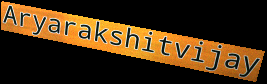
Aryarakshitvijay